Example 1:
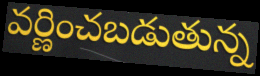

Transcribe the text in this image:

వర్ణించబడుతున్న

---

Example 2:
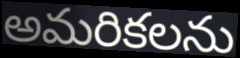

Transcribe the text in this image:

అమరికలను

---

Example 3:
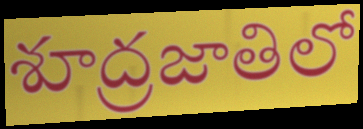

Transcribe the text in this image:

శూద్రజాతిలో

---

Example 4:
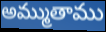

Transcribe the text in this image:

అమ్ముతాము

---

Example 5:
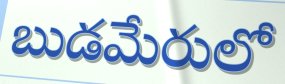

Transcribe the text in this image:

బుడమేరులో